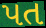
પત